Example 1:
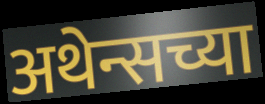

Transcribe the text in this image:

अथेन्सच्या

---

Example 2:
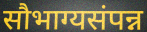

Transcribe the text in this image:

सौभाग्यसंपन्न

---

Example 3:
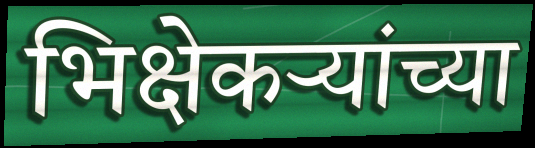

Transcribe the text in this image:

भिक्षेकऱ्यांच्या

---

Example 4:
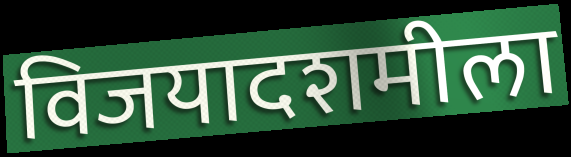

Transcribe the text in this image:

विजयादशमीला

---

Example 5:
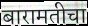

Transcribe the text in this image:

बारामतीचा